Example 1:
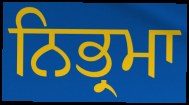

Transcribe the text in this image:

ਨਿਭ੍ਰਮਾ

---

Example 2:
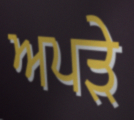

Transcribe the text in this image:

ਅਪੜੇ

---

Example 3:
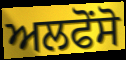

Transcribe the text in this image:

ਅਲਫੋਂਸੋ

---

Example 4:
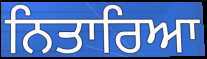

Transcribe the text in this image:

ਨਿਤਾਰਿਆ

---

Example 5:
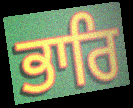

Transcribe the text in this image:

ਭਾਰਿ